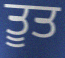
ਤੂਤ